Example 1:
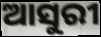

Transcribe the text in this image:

ଆସୁରୀ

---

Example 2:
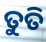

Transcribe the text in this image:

ତୁତି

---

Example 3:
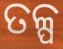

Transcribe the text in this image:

ତଳ୍ପ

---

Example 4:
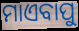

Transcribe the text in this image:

ମାଏବାପୁ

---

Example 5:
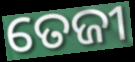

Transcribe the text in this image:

ତେଜୀ